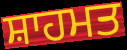
ਸ਼ਾਹਮਤ